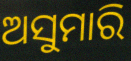
ଅସୁମାରି